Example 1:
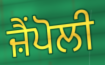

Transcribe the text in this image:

ਜ਼ੈਂਪੋਲੀ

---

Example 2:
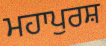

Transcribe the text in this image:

ਮਹਾਪੁਰਸ਼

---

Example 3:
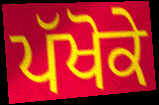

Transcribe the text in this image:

ਪੱਖੋਕੇ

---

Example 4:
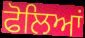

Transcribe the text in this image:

ਫੋਲਿਆਂ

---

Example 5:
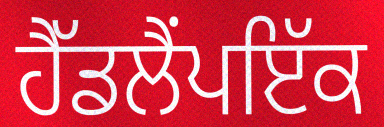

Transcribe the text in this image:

ਹੈੱਡਲੈਂਪਇੱਕ